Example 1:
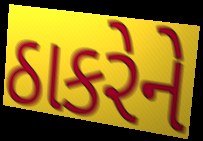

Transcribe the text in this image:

ઠાકરેને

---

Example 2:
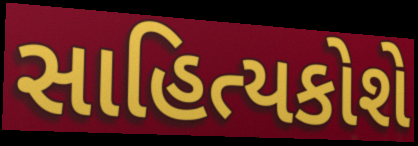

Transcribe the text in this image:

સાહિત્યકોશે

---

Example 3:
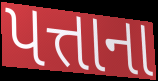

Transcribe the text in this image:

પત્તાના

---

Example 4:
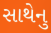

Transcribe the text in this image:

સાથેનુ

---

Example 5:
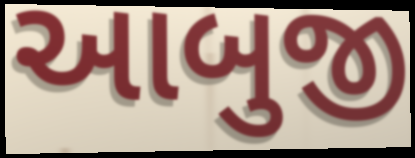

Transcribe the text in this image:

આબુજી